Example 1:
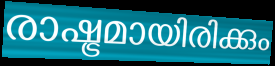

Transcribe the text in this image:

രാഷ്ട്രമായിരിക്കും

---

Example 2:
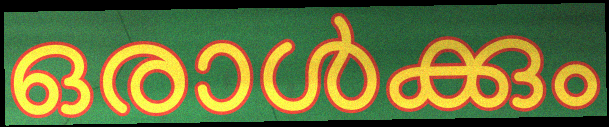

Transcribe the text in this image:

ഒരാൾക്കും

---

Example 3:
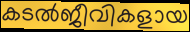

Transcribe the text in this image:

കടൽജീവികളായ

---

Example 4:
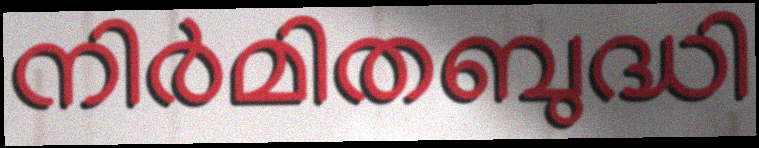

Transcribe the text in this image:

നിർമിതബുദ്ധി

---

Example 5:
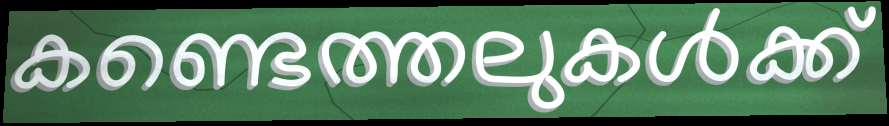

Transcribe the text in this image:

കണ്ടെത്തലുകൾക്ക്